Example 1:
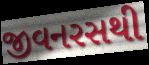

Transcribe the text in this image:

જીવનરસથી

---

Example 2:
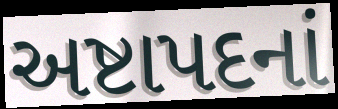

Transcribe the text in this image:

અષ્ટાપદનાં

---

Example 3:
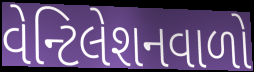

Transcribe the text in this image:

વેન્ટિલેશનવાળો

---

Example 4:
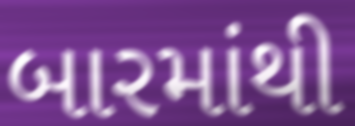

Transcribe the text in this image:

બારમાંથી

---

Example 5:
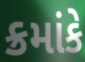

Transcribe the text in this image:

ક્રમાંકે